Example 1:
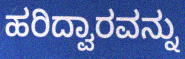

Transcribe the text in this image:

ಹರಿದ್ವಾರವನ್ನು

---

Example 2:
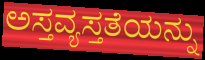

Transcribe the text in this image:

ಅಸ್ತವ್ಯಸ್ತತೆಯನ್ನು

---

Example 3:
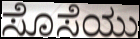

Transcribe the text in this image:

ಸೊಸೆಯು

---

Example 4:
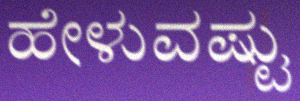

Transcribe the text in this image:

ಹೇಳುವಷ್ಟು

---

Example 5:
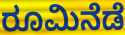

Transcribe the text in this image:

ರೂಮಿನೆಡೆ